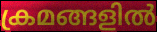
ക്രമങ്ങളിൽ